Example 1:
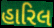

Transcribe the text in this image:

હારિલ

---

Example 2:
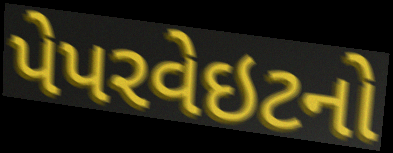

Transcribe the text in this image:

પેપરવેઇટનો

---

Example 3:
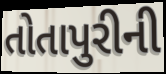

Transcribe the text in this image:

તોતાપુરીની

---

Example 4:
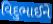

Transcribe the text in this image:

વિદુભાઈને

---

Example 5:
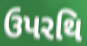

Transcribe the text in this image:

ઉપરથિ